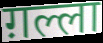
ग़ल्ला